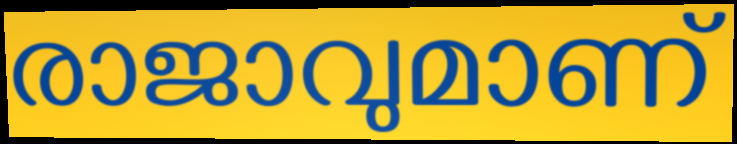
രാജാവുമാണ്